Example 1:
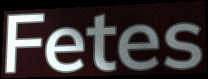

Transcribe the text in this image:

Fetes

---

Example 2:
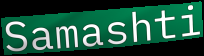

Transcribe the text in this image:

Samashti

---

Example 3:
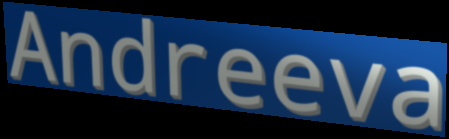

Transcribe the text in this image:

Andreeva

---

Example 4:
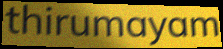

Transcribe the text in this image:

thirumayam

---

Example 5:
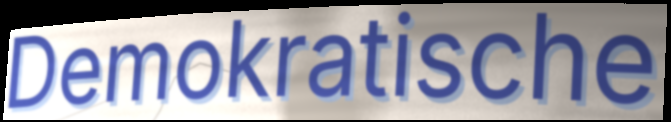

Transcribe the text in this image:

Demokratische